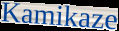
Kamikaze